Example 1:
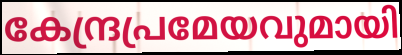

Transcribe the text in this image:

കേന്ദ്രപ്രമേയവുമായി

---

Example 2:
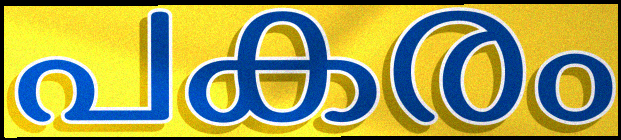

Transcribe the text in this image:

പകരം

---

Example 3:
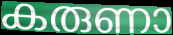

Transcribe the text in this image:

കരുണാ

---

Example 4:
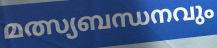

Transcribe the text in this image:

മത്സ്യബന്ധനവും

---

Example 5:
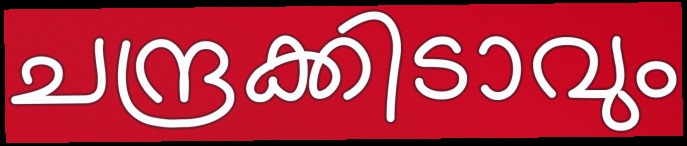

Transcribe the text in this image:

ചന്ദ്രക്കിടാവും